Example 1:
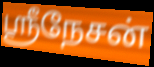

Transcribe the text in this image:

ஸ்ரீநேசன்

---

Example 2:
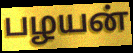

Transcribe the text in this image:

பழயன்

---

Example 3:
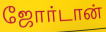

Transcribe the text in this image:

ஜோர்டான்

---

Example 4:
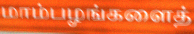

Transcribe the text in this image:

மாம்பழங்களைத்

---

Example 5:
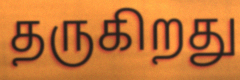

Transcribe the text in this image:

தருகிறது